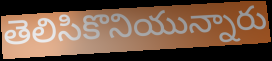
తెలిసికొనియున్నారు